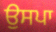
ਉਸਪਾ